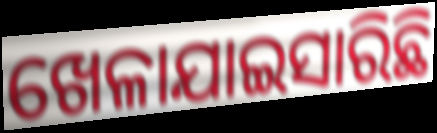
ଖେଳାଯାଇସାରିଛି